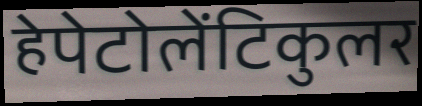
हेपेटोलेंटिकुलर